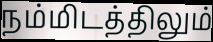
நம்மிடத்திலும்